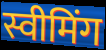
स्‍वीमिंग